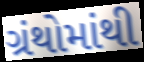
ગ્રંથોમાંથી